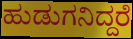
ಹುಡುಗನಿದ್ದರೆ